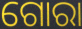
ଗୋରା